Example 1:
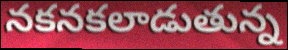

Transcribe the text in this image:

నకనకలాడుతున్న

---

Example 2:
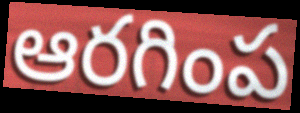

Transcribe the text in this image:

ఆరగింప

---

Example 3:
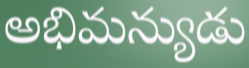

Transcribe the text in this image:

అభిమన్యుడు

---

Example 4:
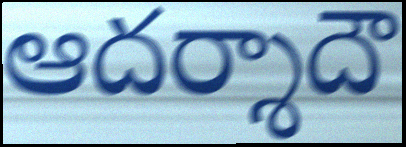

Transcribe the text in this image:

ఆదర్శాదౌ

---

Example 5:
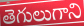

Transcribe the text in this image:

తెగులుగాని